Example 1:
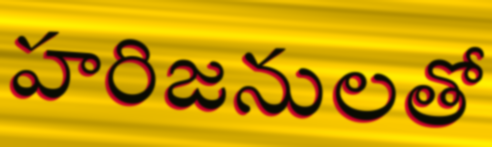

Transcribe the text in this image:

హరిజనులతో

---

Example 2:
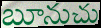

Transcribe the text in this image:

బూనుచు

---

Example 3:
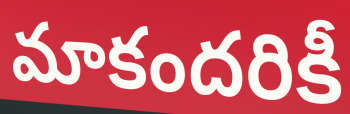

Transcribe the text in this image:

మాకందరికీ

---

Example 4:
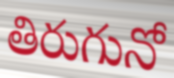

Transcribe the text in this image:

తిరుగునో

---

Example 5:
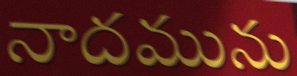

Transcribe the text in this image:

నాదమును